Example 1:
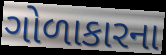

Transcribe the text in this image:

ગોળાકારના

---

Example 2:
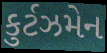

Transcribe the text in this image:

કુર્ટઝમેન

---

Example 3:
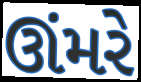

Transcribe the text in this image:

ઊંમરે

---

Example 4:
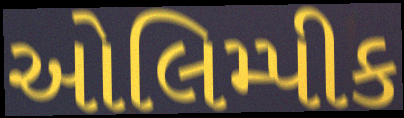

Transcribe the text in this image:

ઓલિમ્પીક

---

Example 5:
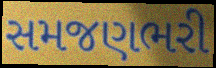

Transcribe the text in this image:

સમજણભરી